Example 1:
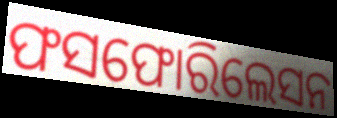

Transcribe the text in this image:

ଫସଫୋରିଲେସନ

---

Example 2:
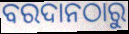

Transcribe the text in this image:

ବରଦାନଠାରୁ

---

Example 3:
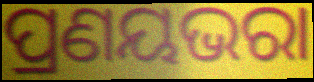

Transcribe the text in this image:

ପ୍ରଣୟଭରା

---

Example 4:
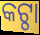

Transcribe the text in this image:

କଟ୍ଠା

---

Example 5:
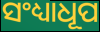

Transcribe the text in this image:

ସଂଧ୍ୟାଧୂପ